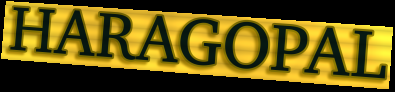
HARAGOPAL